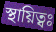
স্থায়িত্বঃ